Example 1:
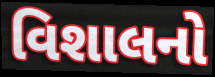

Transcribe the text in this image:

વિશાલનો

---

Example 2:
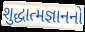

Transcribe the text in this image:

શુદ્ધાત્મજ્ઞાનનો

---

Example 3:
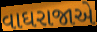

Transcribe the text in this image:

વાઘરાજાએ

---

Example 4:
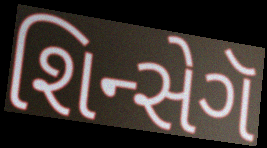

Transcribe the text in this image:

શિન્સેગૅ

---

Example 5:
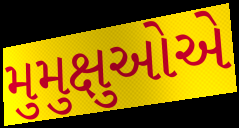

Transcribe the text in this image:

મુમુક્ષુઓએ